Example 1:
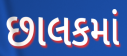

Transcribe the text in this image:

છાલકમાં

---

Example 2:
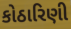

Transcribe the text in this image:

કોઠારિણી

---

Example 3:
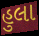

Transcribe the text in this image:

હુલા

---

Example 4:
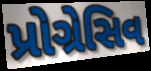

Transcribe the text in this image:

પ્રોગ્રેસિવ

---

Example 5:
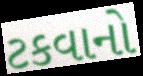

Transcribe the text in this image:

ટકવાનો